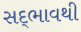
સદ્‍ભાવથી